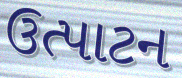
ઉત્પાટન